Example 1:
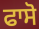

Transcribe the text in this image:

ਫਾਸੋ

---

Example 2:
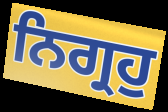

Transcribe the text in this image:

ਨਿਗ੍ਰਹੁ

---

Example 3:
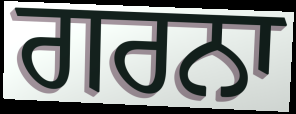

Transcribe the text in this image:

ਗਰਨਾ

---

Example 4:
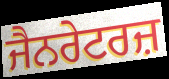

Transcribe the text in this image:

ਜੈਨਰੇਟਰਜ਼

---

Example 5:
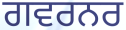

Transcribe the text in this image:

ਗਵਰਨਰ